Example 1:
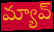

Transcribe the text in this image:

మ్యావ్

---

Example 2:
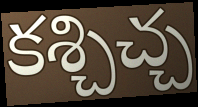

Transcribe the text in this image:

కశ్చిచ్చ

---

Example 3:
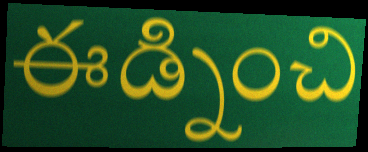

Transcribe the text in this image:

ఈడ్నించి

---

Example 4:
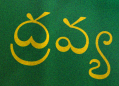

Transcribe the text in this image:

ద్రవ్య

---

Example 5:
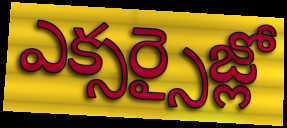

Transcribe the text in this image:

ఎక్సర్సైజ్లో